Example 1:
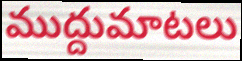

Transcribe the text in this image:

ముద్దుమాటలు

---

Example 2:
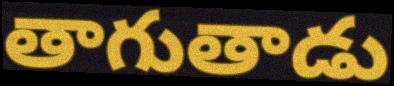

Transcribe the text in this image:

తాగుతాడు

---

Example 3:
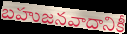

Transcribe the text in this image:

బహుజనవాదానికీ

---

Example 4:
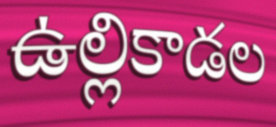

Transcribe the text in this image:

ఉల్లికాడల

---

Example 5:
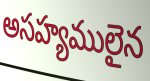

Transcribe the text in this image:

అసహ్యములైన